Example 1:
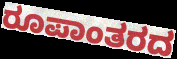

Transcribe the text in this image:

ರೂಪಾಂತರದ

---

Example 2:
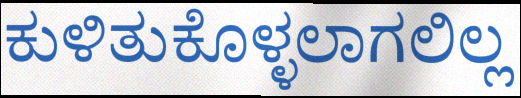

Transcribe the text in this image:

ಕುಳಿತುಕೊಳ್ಳಲಾಗಲಿಲ್ಲ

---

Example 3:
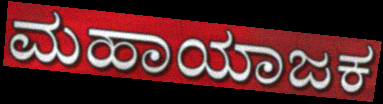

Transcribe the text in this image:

ಮಹಾಯಾಜಕ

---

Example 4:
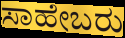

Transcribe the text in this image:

ಸಾಹೇಬರು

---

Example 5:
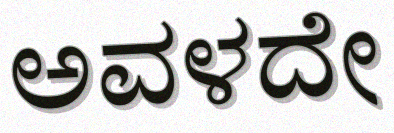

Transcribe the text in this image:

ಅವಳದೇ